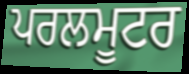
ਪਰਲਮੂਟਰ